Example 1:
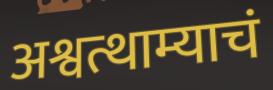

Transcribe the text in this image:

अश्वत्थाम्याचं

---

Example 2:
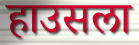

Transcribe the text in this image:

हाउसला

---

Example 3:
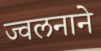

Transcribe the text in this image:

ज्वलनाने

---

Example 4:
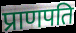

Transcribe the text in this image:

प्राणपति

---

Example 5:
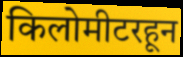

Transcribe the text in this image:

किलोमीटरहून